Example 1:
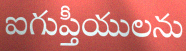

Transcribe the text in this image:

ఐగుప్తీయులను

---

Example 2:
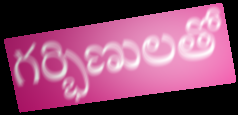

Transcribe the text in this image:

గర్భిణులతో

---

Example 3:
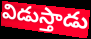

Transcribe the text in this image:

విడుస్తాడు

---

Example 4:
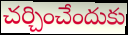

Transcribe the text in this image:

చర్చించేందుకు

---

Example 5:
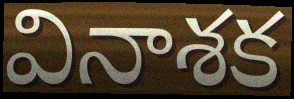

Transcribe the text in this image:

వినాశక